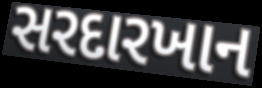
સરદારખાન